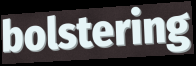
bolstering